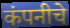
कंपनीचे